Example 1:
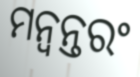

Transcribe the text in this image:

ମନ୍ବନ୍ତରଂ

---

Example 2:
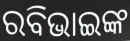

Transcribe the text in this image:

ରବିଭାଇଙ୍କ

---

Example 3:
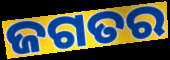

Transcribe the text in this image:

ଜଗତର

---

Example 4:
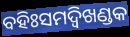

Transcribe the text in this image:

ବହିଃସମଦ୍ୱିଖଣ୍ଡକ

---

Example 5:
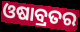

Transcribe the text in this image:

ଓଷାବ୍ରତର